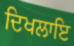
ਦਿਖਲਾਇ